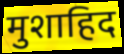
मुशाहिद